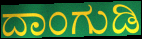
ದಾಂಗುಡಿ